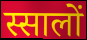
स्सालों